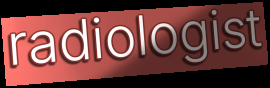
radiologist